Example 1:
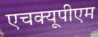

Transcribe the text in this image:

एचक्यूपीएम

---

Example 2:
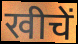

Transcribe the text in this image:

खीचें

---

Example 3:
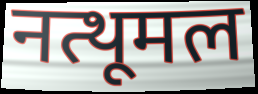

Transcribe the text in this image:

नत्थूमल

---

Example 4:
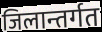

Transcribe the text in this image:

जिलान्तर्गत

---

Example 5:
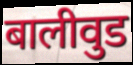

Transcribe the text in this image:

बालीवुड